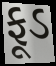
ફૂડ